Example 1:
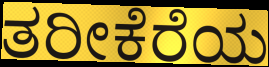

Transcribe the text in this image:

ತರೀಕೆರೆಯ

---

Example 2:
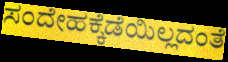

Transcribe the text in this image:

ಸಂದೇಹಕ್ಕೆಡೆಯಿಲ್ಲದಂತೆ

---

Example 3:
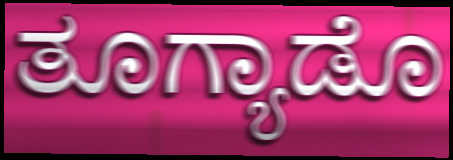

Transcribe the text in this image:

ತೂಗ್ಯಾಡೊ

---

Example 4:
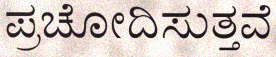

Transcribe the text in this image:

ಪ್ರಚೋದಿಸುತ್ತವೆ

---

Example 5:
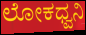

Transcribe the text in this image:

ಲೋಕಧ್ವನಿ